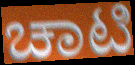
ಚಾಟಿ